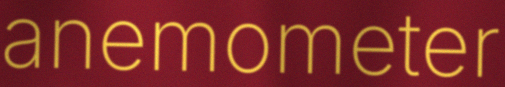
anemometer